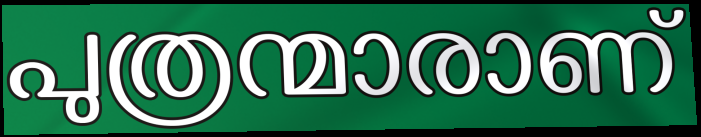
പുത്രന്മാരാണ്